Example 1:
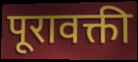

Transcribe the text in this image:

पूरावक्ती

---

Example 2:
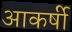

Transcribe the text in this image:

आकर्षी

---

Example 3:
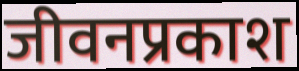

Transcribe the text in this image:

जीवनप्रकाश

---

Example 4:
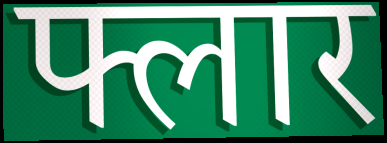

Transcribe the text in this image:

फ्लार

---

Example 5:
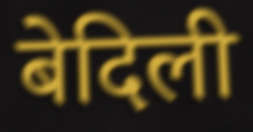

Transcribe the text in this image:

बेदिली